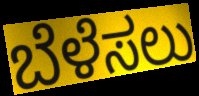
ಬೆಳೆಸಲು